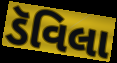
ડૅવિલા